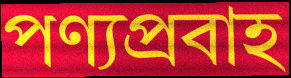
পণ্যপ্রবাহ